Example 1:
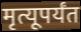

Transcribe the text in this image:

मृत्यूपर्यंत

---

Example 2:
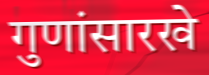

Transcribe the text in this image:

गुणांसारखे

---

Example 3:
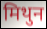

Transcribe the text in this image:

मिथुन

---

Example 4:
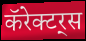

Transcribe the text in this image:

कॅरेक्टर्स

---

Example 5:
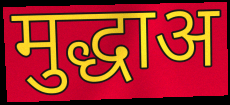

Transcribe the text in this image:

मुद्धाअ